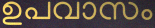
ഉപവാസം